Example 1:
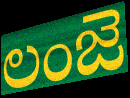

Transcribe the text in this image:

లంజె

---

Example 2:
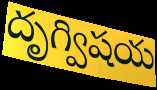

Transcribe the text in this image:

దృగ్విషయ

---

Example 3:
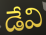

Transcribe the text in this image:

డేవి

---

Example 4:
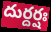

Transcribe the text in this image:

దుర్దర్షః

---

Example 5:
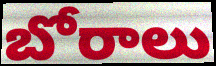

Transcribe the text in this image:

బోరాలు